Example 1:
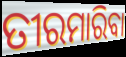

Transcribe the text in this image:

ତୀରମାରିବା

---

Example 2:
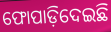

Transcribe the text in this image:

ଫୋପାଡ଼ିଦେଇଛି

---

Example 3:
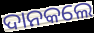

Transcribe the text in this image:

ଦାନକଲେ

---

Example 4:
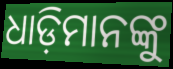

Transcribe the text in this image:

ଧାଡ଼ିମାନଙ୍କୁ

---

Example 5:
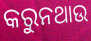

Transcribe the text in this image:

କରୁନଥାଉ